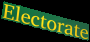
Electorate